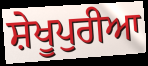
ਸ਼ੇਖੂਪੁਰੀਆ